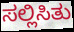
ಸಲ್ಲಿಸಿತು